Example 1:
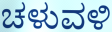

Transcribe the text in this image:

ಚಳುವಳಿ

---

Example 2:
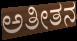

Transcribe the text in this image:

ಅತೀತನ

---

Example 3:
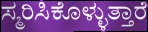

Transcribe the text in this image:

ಸ್ಮರಿಸಿಕೊಳ್ಳುತ್ತಾರೆ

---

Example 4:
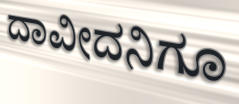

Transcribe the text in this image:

ದಾವೀದನಿಗೂ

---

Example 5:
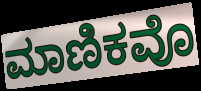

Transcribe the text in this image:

ಮಾಣಿಕವೊ